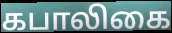
கபாலிகை